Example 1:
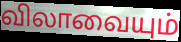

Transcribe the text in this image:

விலாவையும்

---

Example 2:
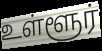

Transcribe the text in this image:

உள்ளூர்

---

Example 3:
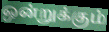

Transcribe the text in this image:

ஒன்றுக்கும்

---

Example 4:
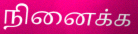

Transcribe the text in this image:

நினைக்க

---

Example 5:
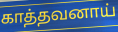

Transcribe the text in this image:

காத்தவனாய்